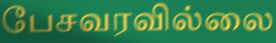
பேசவரவில்லை